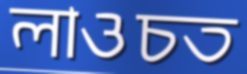
লাওচত